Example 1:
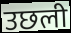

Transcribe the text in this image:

उछली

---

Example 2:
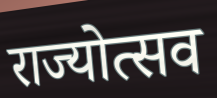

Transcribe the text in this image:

राज्योत्सव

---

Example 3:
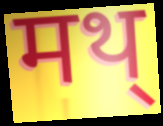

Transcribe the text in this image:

मथ्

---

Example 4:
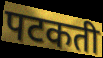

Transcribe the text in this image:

पटकती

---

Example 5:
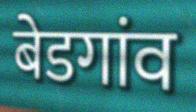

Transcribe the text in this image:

बेडगांव